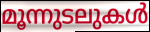
മൂന്നുടലുകൾ